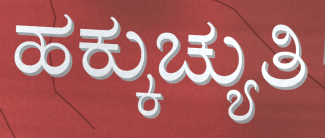
ಹಕ್ಕುಚ್ಯುತಿ